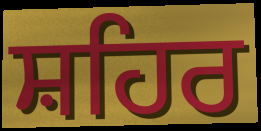
ਸ਼ਹਿਰ